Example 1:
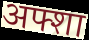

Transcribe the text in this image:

अफ्शा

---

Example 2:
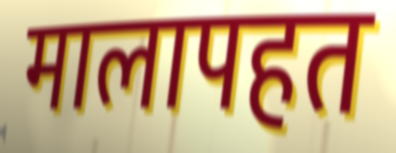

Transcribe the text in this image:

मालापहत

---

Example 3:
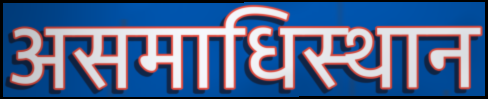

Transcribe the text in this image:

असमाधिस्थान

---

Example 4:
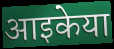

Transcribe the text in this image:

आइकेया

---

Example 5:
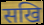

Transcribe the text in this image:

सखि